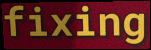
fixing